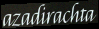
azadirachta